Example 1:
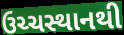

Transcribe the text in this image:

ઉચ્ચસ્થાનથી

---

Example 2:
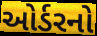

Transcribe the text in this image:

ઓર્ડરનો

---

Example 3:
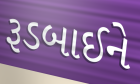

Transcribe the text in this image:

રૂડબાઈને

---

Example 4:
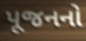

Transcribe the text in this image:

પૂજનનો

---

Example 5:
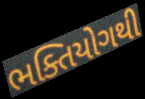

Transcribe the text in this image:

ભક્તિયોગથી